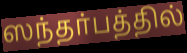
ஸந்தர்பத்தில்